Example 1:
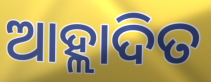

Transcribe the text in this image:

ଆହ୍ଲାଦିତ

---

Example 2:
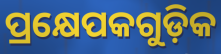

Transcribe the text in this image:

ପ୍ରକ୍ଷେପକଗୁଡ଼ିକ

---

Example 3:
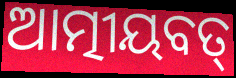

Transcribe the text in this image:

ଆତ୍ମୀୟବତ୍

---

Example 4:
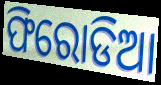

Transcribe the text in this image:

ଫିରୋଡିଆ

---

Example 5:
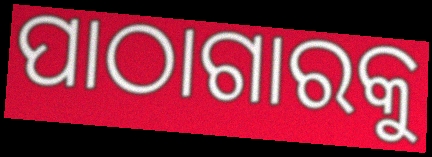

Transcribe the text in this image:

ପାଠାଗାରକୁ